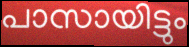
പാസായിട്ടും